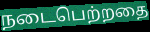
நடைபெற்றதை